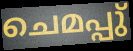
ചെമപ്പു്